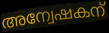
അന്വേഷകന്